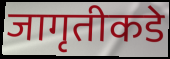
जागृतीकडे